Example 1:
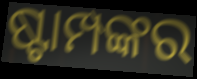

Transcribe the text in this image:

ଷ୍ଟାମ୍ପଙ୍କର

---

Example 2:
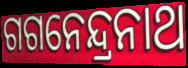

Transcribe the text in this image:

ଗଗନେନ୍ଦ୍ରନାଥ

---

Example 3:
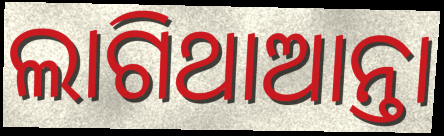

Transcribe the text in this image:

ଲାଗିଥାଆନ୍ତା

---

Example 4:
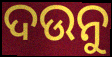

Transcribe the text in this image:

ଦଉନୁ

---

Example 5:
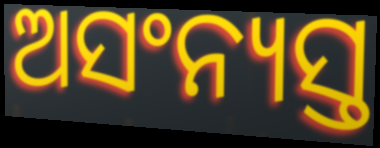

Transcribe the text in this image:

ଅସଂନ୍ୟସ୍ତ